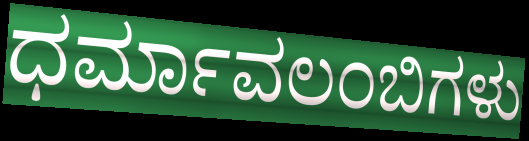
ಧರ್ಮಾವಲಂಬಿಗಳು